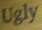
Ugly